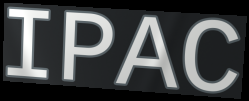
IPAC